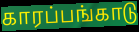
காரப்பங்காடு